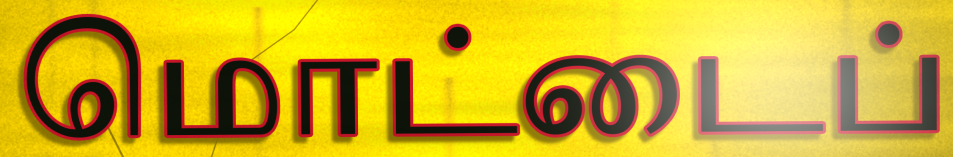
மொட்டைப்